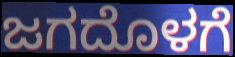
ಜಗದೊಳಗೆ